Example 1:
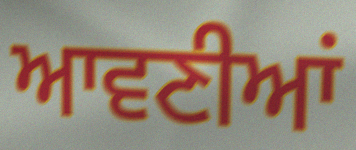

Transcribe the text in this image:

ਆਵਣੀਆਂ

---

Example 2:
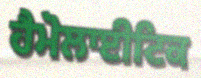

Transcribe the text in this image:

ਹੈਮੋਲਾਈਟਿਕ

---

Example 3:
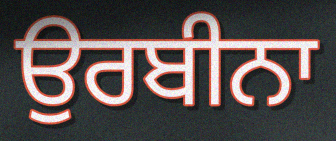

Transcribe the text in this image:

ਉਰਬੀਨਾ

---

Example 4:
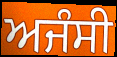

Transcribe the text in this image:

ਅਜੰਸੀ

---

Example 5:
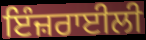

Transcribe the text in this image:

ਇੰਜ਼ਰਾਈਲੀ